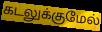
கடலுக்குமேல்